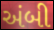
અંબી